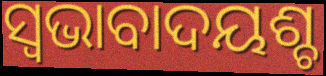
ସ୍ଵଭାବାଦୟଶ୍ଚ